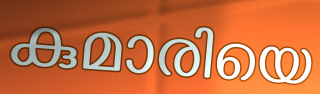
കുമാരിയെ